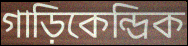
গাড়িকেন্দ্রিক